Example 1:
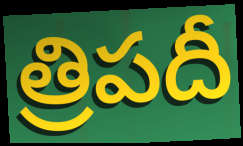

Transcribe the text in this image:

త్రిపదీ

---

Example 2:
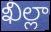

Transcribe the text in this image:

ఖిల్లా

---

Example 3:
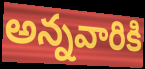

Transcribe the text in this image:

అన్నవారికి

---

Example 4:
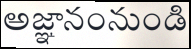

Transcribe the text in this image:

అజ్ఞానంనుండి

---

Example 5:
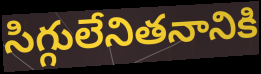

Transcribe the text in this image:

సిగ్గులేనితనానికి